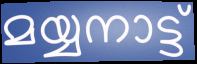
മയ്യനാട്ട്